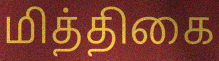
மித்திகை